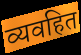
व्यवहित